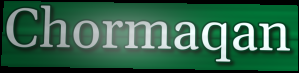
Chormaqan